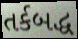
તર્કબદ્ધ